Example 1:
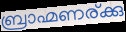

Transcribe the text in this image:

ബ്രാഹ്മണര്ക്കു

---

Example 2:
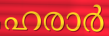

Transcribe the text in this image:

ഹരാർ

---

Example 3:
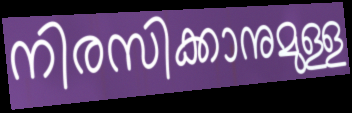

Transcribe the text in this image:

നിരസിക്കാനുമുള്ള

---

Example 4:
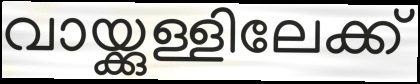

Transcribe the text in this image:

വായ്ക്കുള്ളിലേക്ക്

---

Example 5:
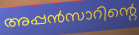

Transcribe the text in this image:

അപ്പൻസാറിന്റെ